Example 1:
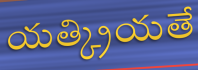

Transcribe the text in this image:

యత్క్రియతే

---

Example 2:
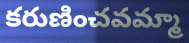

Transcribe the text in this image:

కరుణించవమ్మా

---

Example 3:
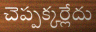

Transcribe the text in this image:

చెప్పక్కర్లేదు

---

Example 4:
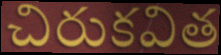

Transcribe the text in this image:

చిరుకవిత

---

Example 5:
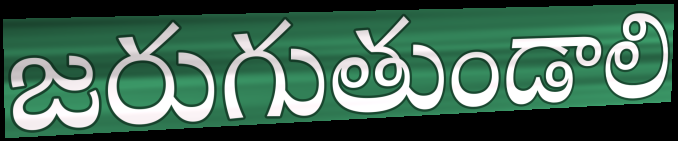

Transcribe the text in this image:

జరుగుతుండాలి